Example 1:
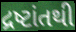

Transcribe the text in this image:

દ્રષ્ટાંતથી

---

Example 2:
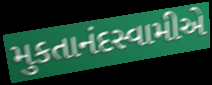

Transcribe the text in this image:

મુકતાનંદસ્વામીએ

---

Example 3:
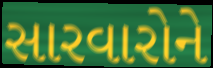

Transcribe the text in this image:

સારવારોને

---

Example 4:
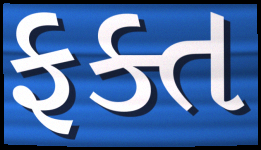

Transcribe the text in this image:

ફક્ત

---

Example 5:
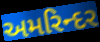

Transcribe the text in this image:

અમરિન્દર